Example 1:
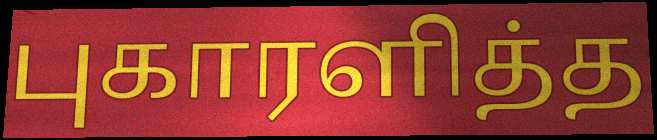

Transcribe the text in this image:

புகாரளித்த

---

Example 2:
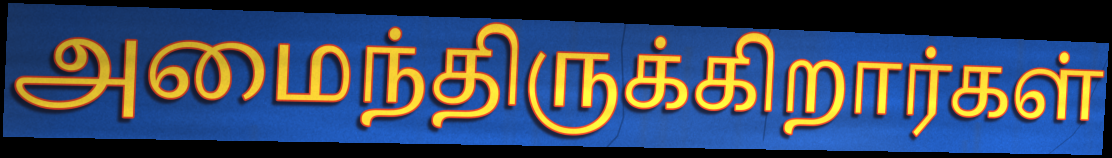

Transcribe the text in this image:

அமைந்திருக்கிறார்கள்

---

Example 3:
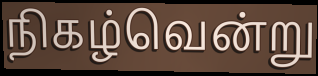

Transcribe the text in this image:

நிகழ்வென்று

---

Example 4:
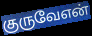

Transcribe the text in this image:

குருவேஎன்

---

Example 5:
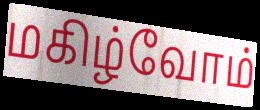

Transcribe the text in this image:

மகிழ்வோம்